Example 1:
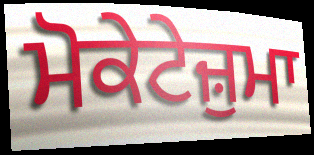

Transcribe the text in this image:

ਮੋਕੇਟੇਜ਼ੁਮਾ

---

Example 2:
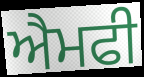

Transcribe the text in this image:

ਐਮਫੀ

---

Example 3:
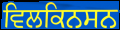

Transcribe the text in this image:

ਵਿਲਕਿਨਸਨ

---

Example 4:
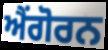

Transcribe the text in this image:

ਐਂਗੋਰਨ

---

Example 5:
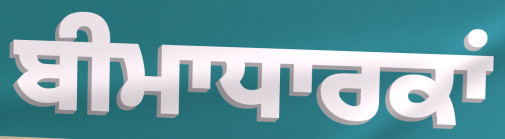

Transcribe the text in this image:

ਬੀਮਾਧਾਰਕਾਂ